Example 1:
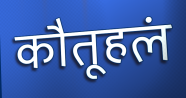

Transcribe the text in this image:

कौतूहलं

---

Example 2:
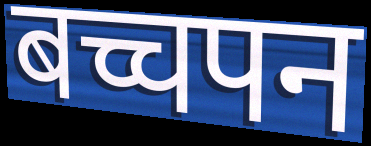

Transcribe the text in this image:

बच्चपन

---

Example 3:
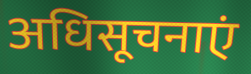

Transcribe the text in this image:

अधिसूचनाएं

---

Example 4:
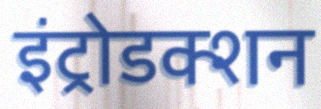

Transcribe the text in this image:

इंट्रोडक्शन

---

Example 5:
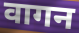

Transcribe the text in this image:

वागन